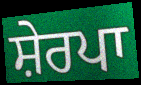
ਸ਼ੇਰਪਾ